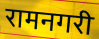
रामनगरी